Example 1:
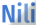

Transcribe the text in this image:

Nili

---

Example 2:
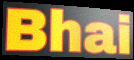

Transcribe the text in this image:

Bhai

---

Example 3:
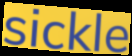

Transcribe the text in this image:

sickle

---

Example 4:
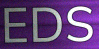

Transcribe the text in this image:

EDS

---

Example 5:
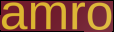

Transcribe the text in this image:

amro